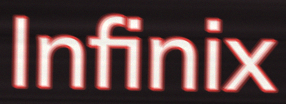
Infinix